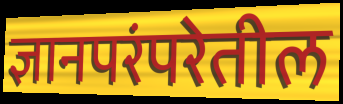
ज्ञानपरंपरेतील